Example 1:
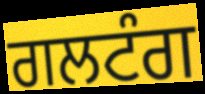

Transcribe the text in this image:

ਗਲਟੰਗ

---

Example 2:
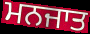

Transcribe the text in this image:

ਮਨਜਾਤ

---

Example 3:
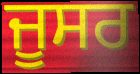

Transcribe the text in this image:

ਜੂਸਰ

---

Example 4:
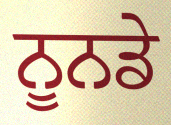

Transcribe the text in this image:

ਨੂਨਡੇ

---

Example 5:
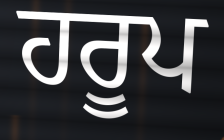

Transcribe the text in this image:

ਹਰੂਪ